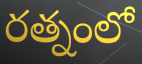
రత్నంలో